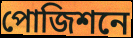
পোজিশনে